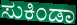
ಸುಕಿಂಡಾ